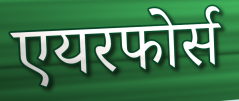
एयरफोर्स